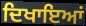
ਦਿਖਾਇਆਂ